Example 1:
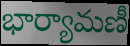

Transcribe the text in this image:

భార్యామణీ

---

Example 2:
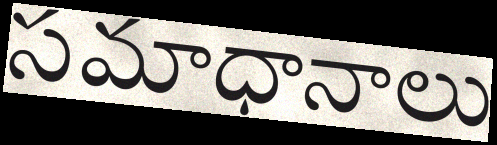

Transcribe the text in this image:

సమాధానాలు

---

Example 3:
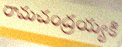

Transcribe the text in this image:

రామచంద్రయ్యకి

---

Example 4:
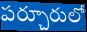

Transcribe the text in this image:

పర్చూరులో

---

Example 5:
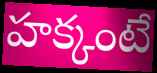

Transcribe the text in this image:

హక్కంటే